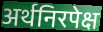
अर्थनिरपेक्ष